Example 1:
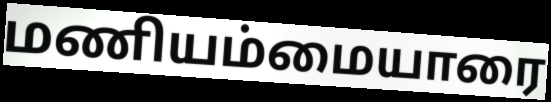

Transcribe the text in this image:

மணியம்மையாரை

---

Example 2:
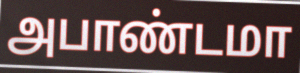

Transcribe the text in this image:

அபாண்டமா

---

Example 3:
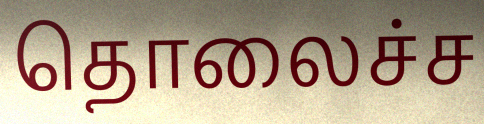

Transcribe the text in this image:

தொலைச்ச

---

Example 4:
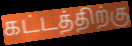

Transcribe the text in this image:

கட்டத்திற்கு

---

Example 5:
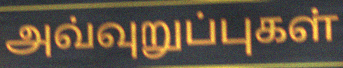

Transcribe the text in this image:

அவ்வுறுப்புகள்